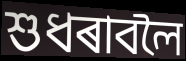
শুধৰাবলৈ